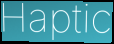
Haptic